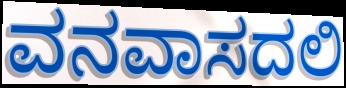
ವನವಾಸದಲಿ